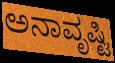
ಅನಾವೃಷ್ಟಿ